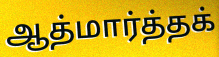
ஆத்மார்த்தக்